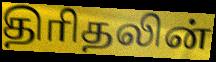
திரிதலின்